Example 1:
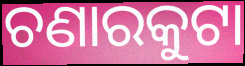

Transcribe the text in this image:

ଚଣାରକୁଟା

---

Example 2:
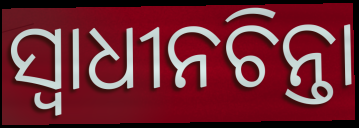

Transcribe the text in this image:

ସ୍ଵାଧୀନଚିନ୍ତା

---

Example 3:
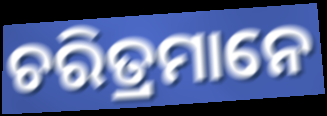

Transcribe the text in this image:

ଚରିତ୍ରମାନେ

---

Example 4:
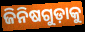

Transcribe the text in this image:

ଜିନିଷଗୁଡ଼ାକୁ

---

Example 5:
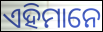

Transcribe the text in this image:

ଏହିମାନେ